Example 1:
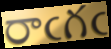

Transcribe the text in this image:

రాఁగఁ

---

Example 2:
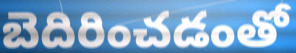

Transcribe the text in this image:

బెదిరించడంతో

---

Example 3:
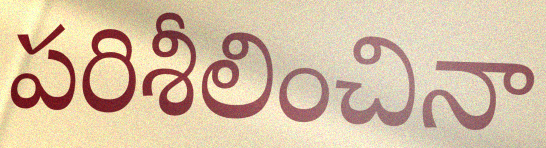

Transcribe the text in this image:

పరిశీలించినా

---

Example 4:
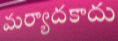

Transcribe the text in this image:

మర్యాదకాదు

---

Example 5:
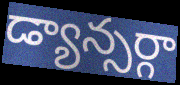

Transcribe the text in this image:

డ్యాన్సర్గా